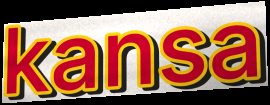
kansa